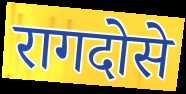
रागदोसे